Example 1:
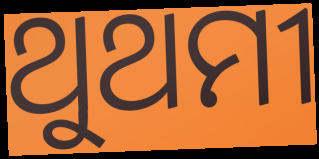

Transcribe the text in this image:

ଥୁଥମୀ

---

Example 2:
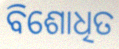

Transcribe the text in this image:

ବିଶୋଧିତ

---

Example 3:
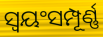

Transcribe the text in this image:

ସ୍ୱୟଂସମ୍ପୂର୍ଣ୍ଣ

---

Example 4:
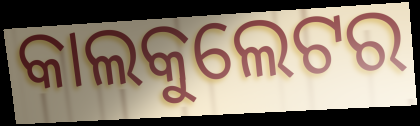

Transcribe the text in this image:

କାଲକୁଲେଟର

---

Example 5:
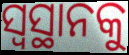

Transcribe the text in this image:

ସ୍ୱସ୍ଥାନକୁ